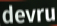
devru